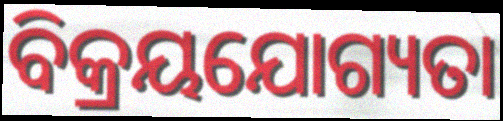
ବିକ୍ରୟଯୋଗ୍ୟତା